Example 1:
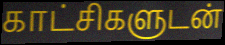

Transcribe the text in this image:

காட்சிகளுடன்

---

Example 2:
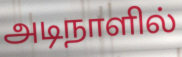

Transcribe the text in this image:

அடிநாளில்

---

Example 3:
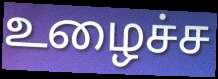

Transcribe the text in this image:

உழைச்ச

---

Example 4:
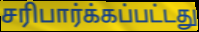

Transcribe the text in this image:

சரிபார்க்கப்பட்டது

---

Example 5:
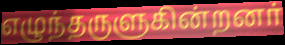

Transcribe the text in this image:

எழுந்தருளுகின்றனர்